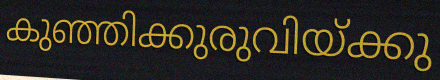
കുഞ്ഞിക്കുരുവിയ്ക്കു